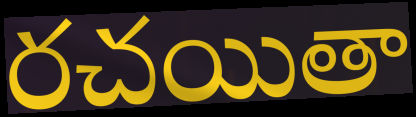
రచయితా